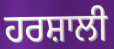
ਹਰਸ਼ਾਲੀ